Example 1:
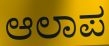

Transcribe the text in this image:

ಆಲಾಪ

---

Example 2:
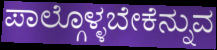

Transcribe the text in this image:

ಪಾಲ್ಗೊಳ್ಳಬೇಕೆನ್ನುವ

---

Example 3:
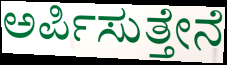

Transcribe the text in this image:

ಅರ್ಪಿಸುತ್ತೇನೆ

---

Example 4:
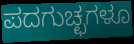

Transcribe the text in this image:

ಪದಗುಚ್ಛಗಳೂ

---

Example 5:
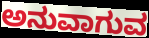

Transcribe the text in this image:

ಅನುವಾಗುವ